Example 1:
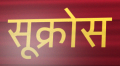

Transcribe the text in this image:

सूक्रोस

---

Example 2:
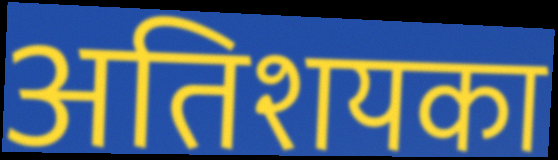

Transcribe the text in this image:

अतिशयका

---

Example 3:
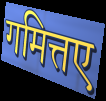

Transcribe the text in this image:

गमित्तए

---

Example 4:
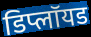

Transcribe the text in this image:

डिप्लॉयड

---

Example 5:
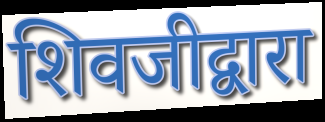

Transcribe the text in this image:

शिवजीद्वारा